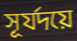
সূর্যদয়ে